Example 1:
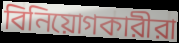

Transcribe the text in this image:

বিনিয়োগকারীরা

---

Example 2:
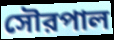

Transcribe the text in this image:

সৌরপাল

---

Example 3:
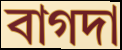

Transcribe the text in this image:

বাগদা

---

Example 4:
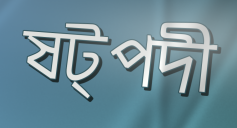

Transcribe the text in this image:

ষট্‌পদী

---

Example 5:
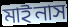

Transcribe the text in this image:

মাইনাস